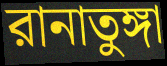
রানাতুঙ্গা